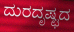
ದುರದೃಷ್ಟದ